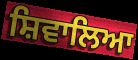
ਸ਼ਿਵਾਲਿਆ